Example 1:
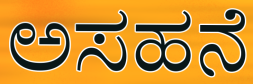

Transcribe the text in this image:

ಅಸಹನೆ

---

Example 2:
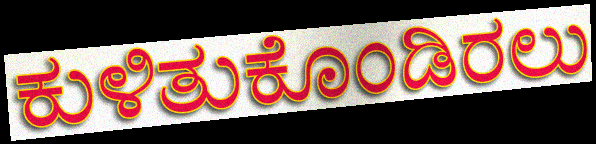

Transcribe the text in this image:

ಕುಳಿತುಕೊಂಡಿರಲು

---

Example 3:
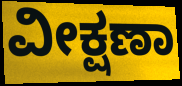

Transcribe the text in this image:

ವೀಕ್ಷಣಾ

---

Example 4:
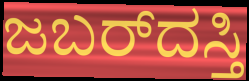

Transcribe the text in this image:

ಜಬರ್‌ದಸ್ತಿ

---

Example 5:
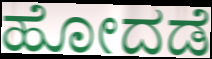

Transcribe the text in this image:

ಹೋದಡೆ